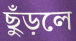
ছুঁড়লে